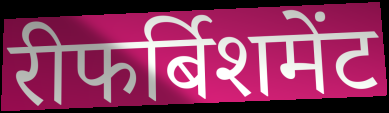
रीफर्बिशमेंट